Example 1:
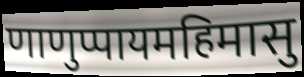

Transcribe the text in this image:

णाणुप्पायमहिमासु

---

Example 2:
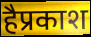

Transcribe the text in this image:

हैप्रकाश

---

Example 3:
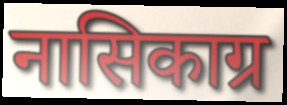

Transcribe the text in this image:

नासिकाग्र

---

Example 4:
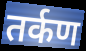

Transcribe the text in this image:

तर्कण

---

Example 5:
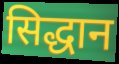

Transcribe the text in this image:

सिद्धान